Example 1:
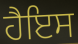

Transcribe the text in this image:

ਹੈਇਸ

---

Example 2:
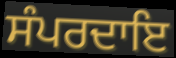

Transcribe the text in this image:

ਸੰਪਰਦਾਇ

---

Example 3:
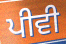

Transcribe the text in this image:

ਪੀਵੀ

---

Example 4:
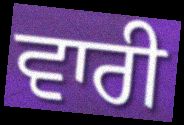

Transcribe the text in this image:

ਵਾਰੀ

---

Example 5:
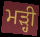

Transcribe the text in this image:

ਮੜ੍ਹੀ